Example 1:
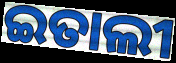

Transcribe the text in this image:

ଇତାଲୀ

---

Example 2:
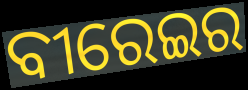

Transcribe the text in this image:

ବୀରେଇର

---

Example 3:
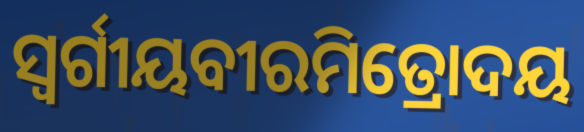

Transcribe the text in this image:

ସ୍ୱର୍ଗୀୟବୀରମିତ୍ରୋଦୟ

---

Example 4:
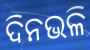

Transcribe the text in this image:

ଦିନଭଳି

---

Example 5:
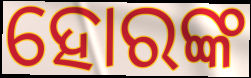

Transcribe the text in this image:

ହୋରଙ୍କ